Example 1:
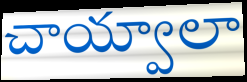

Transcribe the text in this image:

చాయ్వాలా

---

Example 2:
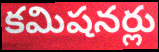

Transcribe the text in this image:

కమిషనర్లు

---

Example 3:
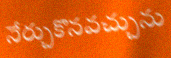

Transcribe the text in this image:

నేర్చుకొనవచ్చును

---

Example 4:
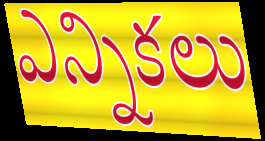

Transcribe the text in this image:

ఎన్నికలు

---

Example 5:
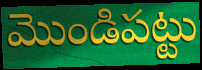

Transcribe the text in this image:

మొండిపట్టు